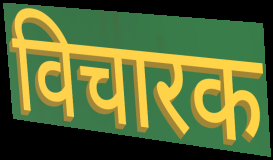
विचारक